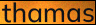
thamas